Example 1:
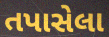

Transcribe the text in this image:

તપાસેલા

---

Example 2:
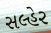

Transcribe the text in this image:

સલ્હેર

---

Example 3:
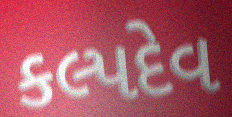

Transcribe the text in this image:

કલ્પદેવ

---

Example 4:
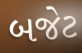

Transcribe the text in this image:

બજેટ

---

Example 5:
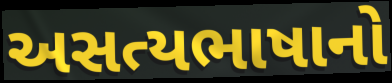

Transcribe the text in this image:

અસત્યભાષાનો